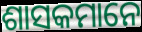
ଶାସକମାନେ